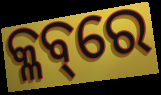
କ୍ଳବ୍‌ରେ